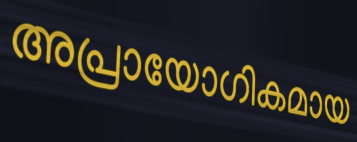
അപ്രായോഗികമായ